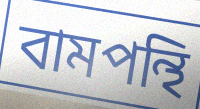
বামপন্থি